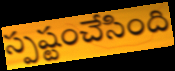
స్పష్టంచేసింది